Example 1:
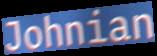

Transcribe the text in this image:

Johnian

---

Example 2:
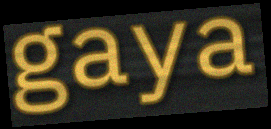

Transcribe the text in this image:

gaya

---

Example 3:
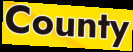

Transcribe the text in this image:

County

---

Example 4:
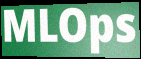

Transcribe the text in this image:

MLOps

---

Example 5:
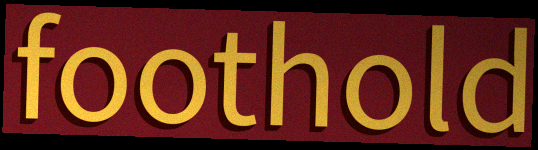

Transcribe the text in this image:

foothold